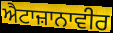
ਐਟਾਜ਼ਾਨਾਵੀਰ